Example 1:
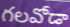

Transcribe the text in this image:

గలవోడా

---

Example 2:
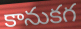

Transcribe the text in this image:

కానుకగ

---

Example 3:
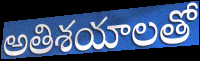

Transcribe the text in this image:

అతిశయాలతో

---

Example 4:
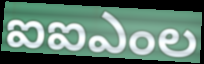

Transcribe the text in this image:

ఐఐఎంల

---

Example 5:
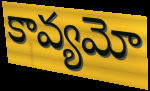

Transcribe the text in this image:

కావ్యమో